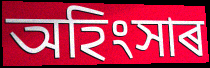
অহিংসাৰ